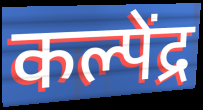
कल्पेंद्र